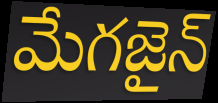
మేగజైన్